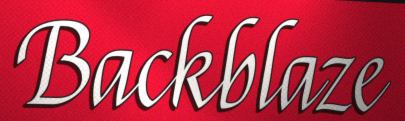
Backblaze